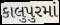
કાલુપુરમાં